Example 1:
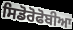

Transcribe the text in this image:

ਸਿਡੋਰੋਫੋਬੀਆ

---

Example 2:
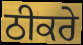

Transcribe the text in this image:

ਠੀਕਰੇ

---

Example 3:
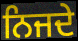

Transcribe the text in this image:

ਨਿਜਦੇ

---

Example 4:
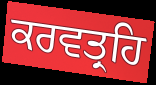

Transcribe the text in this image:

ਕਰਵਤ੍ਰਹਿ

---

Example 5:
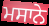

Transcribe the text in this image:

ਮਸਾਨੇ